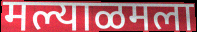
मल्याळमला